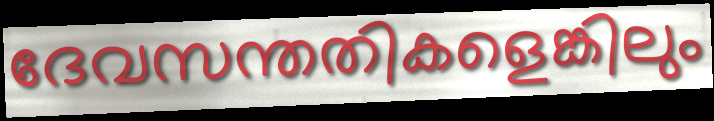
ദേവസന്തതികളെങ്കിലും